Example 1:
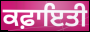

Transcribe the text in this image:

ਕਫ਼ਾਇਤੀ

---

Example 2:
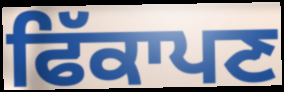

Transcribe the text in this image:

ਫਿੱਕਾਪਣ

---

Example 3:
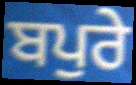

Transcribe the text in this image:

ਬਪੁਰੇ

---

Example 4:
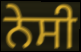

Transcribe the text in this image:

ਨੇਸੀ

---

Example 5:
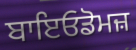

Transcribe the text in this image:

ਬਾਇਓਡੋਮਜ਼